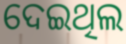
ଦେଇଥିଲ